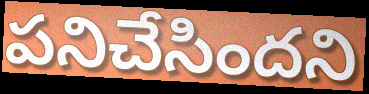
పనిచేసిందని